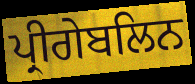
ਪ੍ਰੀਗੇਬਲਿਨ